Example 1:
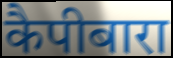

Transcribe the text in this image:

कैपीबारा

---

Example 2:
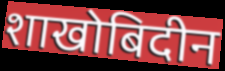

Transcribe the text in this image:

शाखोबिदीन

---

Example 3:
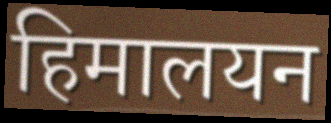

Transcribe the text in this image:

हिमालयन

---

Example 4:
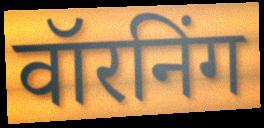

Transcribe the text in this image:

वॉरनिंग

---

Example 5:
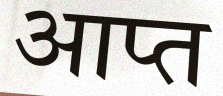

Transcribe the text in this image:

आप्त